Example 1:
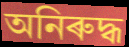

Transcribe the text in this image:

অনিৰুদ্ধ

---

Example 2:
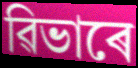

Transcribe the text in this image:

ৱিভাৰে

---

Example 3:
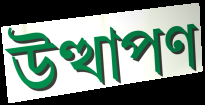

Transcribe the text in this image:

উত্থাপণ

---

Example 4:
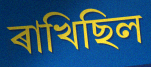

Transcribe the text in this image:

ৰাখিছিল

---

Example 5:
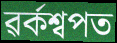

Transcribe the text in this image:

ৱৰ্কশ্বপত